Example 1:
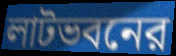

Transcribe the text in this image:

লাটভবনের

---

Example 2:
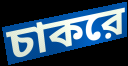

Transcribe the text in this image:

চাকরে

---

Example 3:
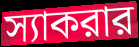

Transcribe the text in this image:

স্যাকরার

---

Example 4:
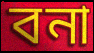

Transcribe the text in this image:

বনা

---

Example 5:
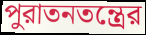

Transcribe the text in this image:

পুরাতনতন্ত্রের